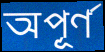
অপূৰ্ণ